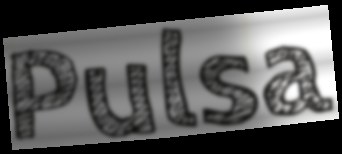
Pulsa